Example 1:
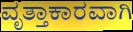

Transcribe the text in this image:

ವೃತ್ತಾಕಾರವಾಗಿ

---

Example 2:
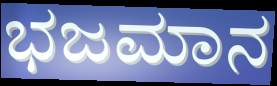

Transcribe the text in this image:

ಭಜಮಾನ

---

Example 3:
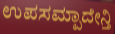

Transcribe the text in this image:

ಉಪಸಮ್ಪಾದೇನ್ತಿ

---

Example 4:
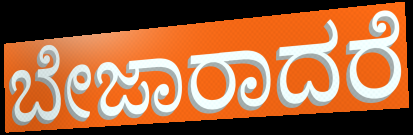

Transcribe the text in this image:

ಬೇಜಾರಾದರೆ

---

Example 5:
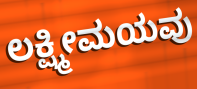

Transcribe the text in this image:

ಲಕ್ಷ್ಮೀಮಯವು